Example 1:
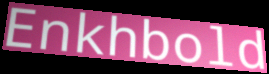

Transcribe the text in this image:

Enkhbold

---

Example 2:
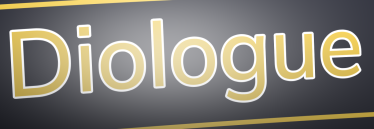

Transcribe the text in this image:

Diologue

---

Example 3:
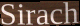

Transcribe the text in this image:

Sirach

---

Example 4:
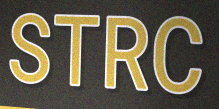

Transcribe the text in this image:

STRC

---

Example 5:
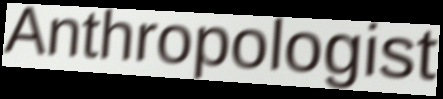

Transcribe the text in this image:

Anthropologist